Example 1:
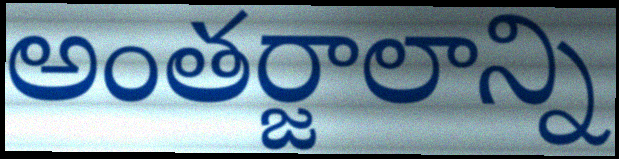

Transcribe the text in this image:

అంతర్జాలాన్ని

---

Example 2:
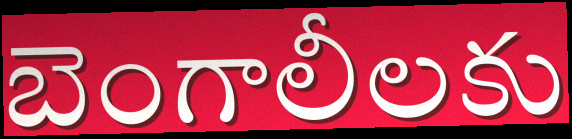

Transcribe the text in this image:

బెంగాలీలకు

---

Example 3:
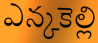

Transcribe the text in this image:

ఎన్కకెల్లి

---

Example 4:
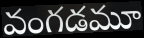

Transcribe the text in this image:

వంగడమూ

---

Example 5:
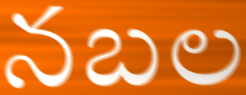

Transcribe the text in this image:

నబల